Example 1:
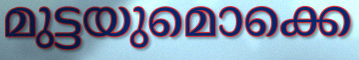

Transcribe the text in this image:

മുട്ടയുമൊക്കെ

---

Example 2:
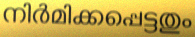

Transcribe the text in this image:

നിർമിക്കപ്പെട്ടതും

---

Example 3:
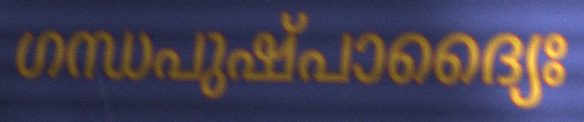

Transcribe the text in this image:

ഗന്ധപുഷ്പാദ്യൈഃ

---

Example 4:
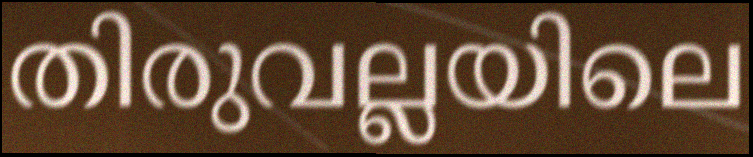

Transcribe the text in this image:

തിരുവല്ലയിലെ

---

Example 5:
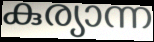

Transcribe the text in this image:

കുര്യാന്ന